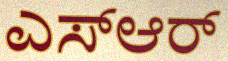
ಎಸ್ಆರ್